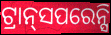
ଟ୍ରାନ୍‌ସପରେନ୍ସି